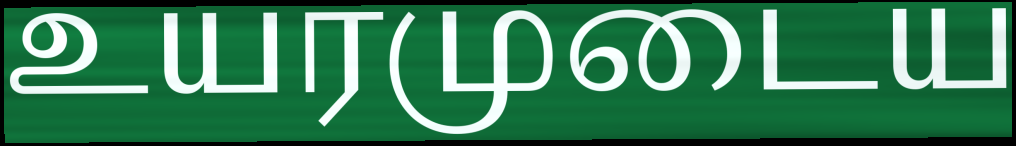
உயரமுடைய